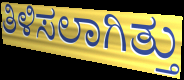
ತಿಳಿಸಲಾಗಿತ್ತು